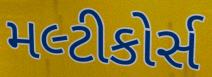
મલ્ટીકોર્સ